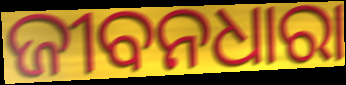
ଜୀବନଧାରା